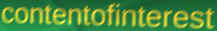
contentofinterest